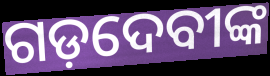
ଗଡ଼ଦେବୀଙ୍କ